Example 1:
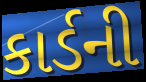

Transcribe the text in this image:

કાર્ડની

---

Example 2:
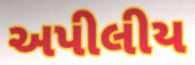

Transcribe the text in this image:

અપીલીય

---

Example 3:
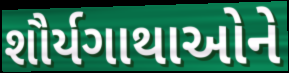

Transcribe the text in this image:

શૌર્યગાથાઓને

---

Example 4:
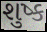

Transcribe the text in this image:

શુષ્ક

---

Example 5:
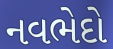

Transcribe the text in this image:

નવભેદો